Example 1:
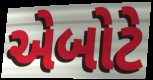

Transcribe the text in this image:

એબોટે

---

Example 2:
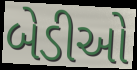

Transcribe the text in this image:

બેડીઓ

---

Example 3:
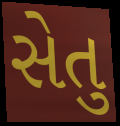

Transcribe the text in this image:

સેતુ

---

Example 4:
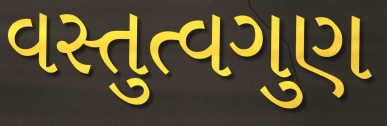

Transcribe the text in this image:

વસ્તુત્વગુણ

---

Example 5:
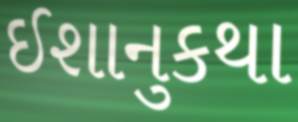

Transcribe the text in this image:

ઈશાનુકથા